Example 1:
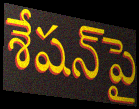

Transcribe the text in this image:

శేషన్‌పై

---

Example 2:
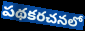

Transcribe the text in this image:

పథకరచనలో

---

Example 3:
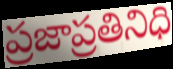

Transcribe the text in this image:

ప్రజాప్రతినిధి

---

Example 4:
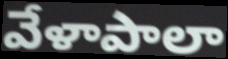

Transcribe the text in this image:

వేళాపాలా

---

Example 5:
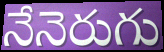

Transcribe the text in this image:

నేనెరుగు